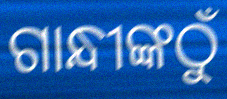
ଗାନ୍ଧୀଙ୍କଠୁଁ